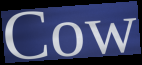
Cow